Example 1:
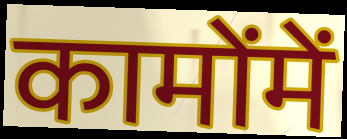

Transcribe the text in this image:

कामोंमें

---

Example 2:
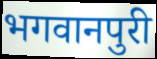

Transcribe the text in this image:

भगवानपुरी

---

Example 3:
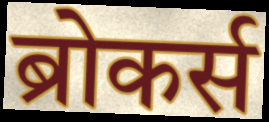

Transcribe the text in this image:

ब्रोकर्स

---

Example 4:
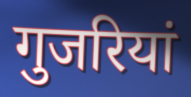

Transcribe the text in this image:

गुजरियां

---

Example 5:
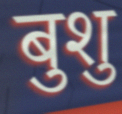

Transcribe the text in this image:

बुशु